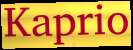
Kaprio